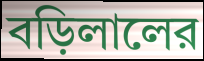
বড়িলালের